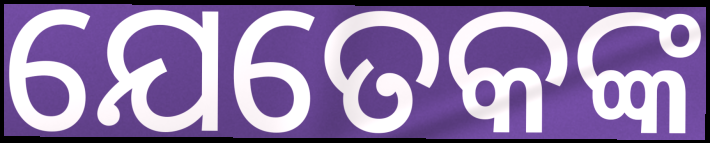
ଯେତେକଙ୍କ